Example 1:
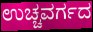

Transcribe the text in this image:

ಉಚ್ಚವರ್ಗದ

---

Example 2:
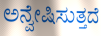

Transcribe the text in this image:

ಅನ್ವೇಷಿಸುತ್ತದೆ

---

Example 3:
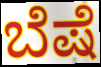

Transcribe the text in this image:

ಬೆಷೆ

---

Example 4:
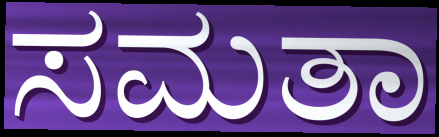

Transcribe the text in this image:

ಸಮತಾ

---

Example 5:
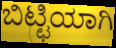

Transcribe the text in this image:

ಬಿಟ್ಟಿಯಾಗಿ